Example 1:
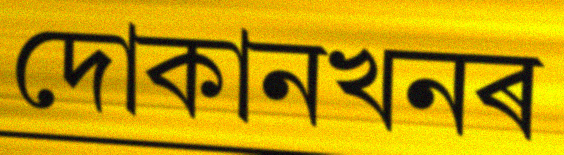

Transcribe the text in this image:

দোকানখনৰ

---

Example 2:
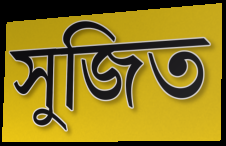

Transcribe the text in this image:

সুজিত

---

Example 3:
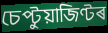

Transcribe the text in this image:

চেপ্টুয়াজিণ্টৰ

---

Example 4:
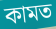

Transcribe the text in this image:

কামত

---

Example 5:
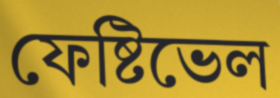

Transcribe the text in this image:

ফেষ্টিভেল